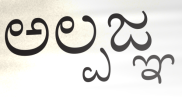
ಅಲ್ಪಜ್ಞ